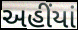
અહીંયાં